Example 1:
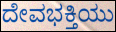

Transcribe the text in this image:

ದೇವಭಕ್ತಿಯು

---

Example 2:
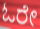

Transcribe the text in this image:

ಓರೇ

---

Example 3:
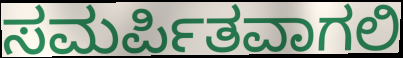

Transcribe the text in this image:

ಸಮರ್ಪಿತವಾಗಲಿ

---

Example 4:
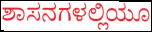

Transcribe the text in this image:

ಶಾಸನಗಳಲ್ಲಿಯೂ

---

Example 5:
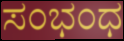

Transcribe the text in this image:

ಸಂಭಂಧ